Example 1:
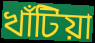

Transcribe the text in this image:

খাঁটিয়া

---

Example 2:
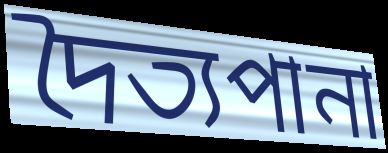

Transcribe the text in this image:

দৈত্যপানা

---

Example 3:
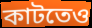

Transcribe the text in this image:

কাটতেও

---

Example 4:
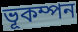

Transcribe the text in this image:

ভূকম্পন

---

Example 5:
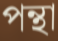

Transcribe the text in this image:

পন্থা